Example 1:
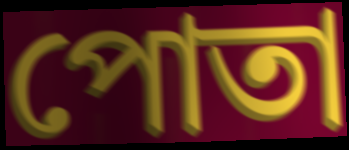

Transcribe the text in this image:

পোতা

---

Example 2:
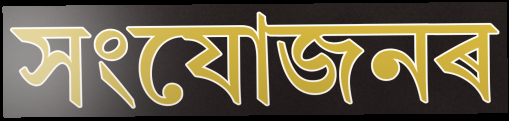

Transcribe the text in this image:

সংযোজনৰ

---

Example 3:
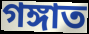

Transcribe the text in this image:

গঙ্গাত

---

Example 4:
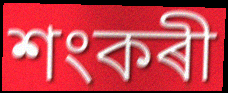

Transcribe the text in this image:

শংকৰী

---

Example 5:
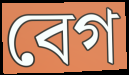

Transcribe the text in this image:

বেগ